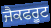
ਜੈਕਫਰੂਟ